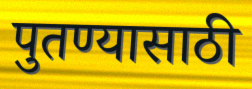
पुतण्यासाठी